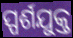
ସ୍ପର୍ଶଯୁକ୍ତ